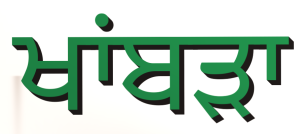
ਖਾਂਬੜਾ